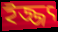
ইজ্জৎ